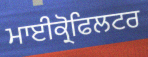
ਮਾਈਕ੍ਰੋਫਿਲਟਰ